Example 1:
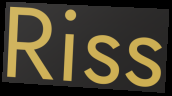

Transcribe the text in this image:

Riss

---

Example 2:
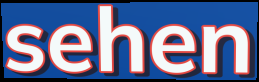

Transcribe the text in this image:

sehen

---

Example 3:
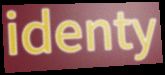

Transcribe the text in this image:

identy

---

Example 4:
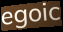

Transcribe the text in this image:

egoic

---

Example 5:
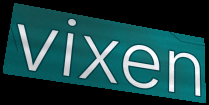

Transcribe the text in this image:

vixen